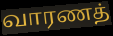
வாரணத்